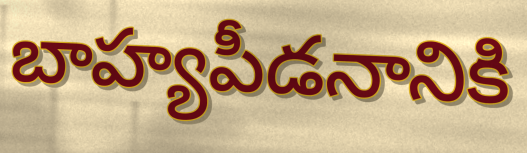
బాహ్యపీడనానికి